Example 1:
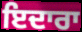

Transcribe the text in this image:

ਇਦਾਰਾ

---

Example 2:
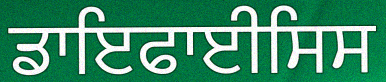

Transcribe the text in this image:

ਡਾਇਫਾਈਸਿਸ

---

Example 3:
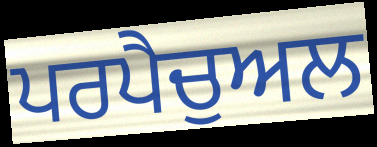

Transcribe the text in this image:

ਪਰਪੈਚੁਅਲ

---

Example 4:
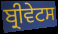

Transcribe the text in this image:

ਬ੍ਰੀਵੇਟਸ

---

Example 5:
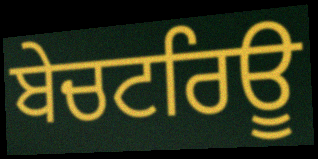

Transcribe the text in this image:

ਬੇਚਟਰਿਊ